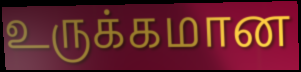
உருக்கமான